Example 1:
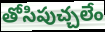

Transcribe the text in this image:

తోసిపుచ్చలేం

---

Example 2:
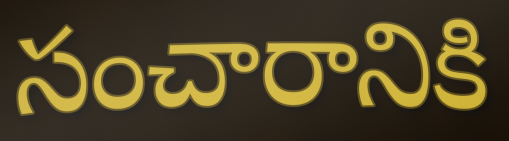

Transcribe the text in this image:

సంచారానికి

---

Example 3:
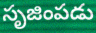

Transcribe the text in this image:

సృజింపడు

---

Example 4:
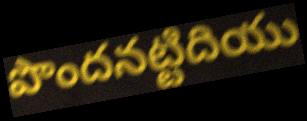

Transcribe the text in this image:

పొందనట్టిదియు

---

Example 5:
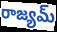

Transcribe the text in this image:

రాజ్యమ్